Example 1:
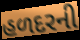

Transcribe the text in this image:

હળદરની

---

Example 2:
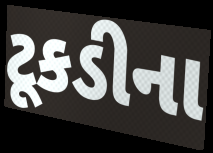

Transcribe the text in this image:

ટૂકડીના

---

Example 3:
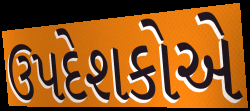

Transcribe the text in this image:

ઉપદેશકોએ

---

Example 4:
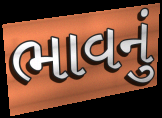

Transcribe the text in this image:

ભાવનું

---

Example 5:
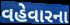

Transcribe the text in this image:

વહેવારના